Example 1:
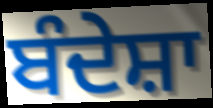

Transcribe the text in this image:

ਬੰਦੇਸ਼ਾ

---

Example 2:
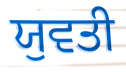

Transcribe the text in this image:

ਯੁਵਤੀ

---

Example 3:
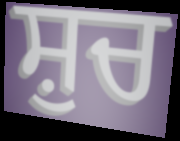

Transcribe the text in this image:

ਸ਼ੁਚ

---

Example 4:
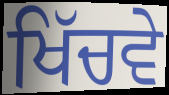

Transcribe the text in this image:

ਖਿੱਚਵੇ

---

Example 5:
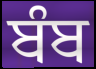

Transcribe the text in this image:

ਬੰਬ